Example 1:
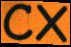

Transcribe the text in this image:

CX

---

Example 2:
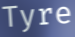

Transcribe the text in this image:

Tyre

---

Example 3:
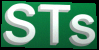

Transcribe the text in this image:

STs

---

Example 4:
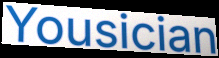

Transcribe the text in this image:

Yousician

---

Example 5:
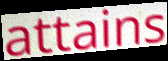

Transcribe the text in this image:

attains